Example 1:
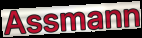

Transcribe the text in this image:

Assmann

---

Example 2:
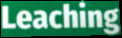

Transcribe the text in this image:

Leaching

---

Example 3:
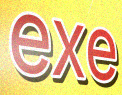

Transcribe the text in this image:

exe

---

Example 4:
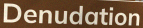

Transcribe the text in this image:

Denudation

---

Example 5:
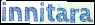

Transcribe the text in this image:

innitara